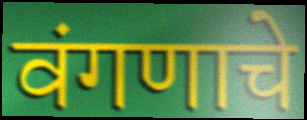
वंगणाचे